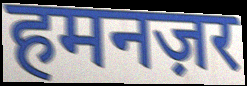
हमनज़र